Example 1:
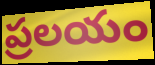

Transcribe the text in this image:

ప్రలయం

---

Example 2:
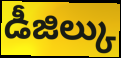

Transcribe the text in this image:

డీజిల్కు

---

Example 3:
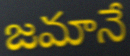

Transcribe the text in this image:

జమానే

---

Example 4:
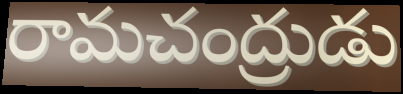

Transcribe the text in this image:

రామచంద్రుడు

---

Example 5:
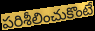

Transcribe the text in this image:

పరిశీలించుకొంటే